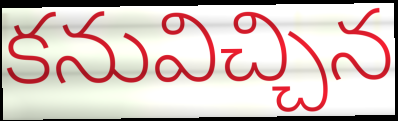
కనువిచ్చిన